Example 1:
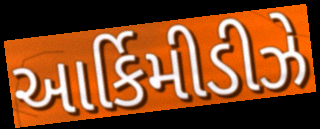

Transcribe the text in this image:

આર્કિમીડીઝે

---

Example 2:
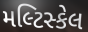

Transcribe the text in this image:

મલ્ટિસ્કેલ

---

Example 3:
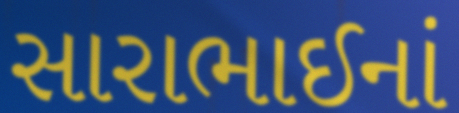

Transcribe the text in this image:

સારાભાઈનાં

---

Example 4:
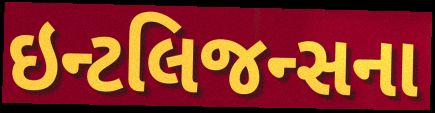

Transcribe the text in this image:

ઇન્ટલિજન્સના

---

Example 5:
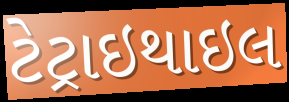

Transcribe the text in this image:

ટેટ્રાઇથાઇલ